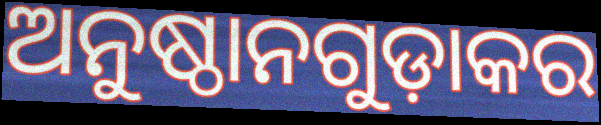
ଅନୁଷ୍ଠାନଗୁଡ଼ାକର